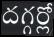
దగ్గర్లో